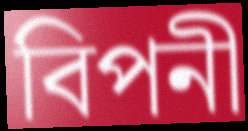
বিপনী